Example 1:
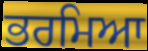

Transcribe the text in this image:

ਭਰਮਿਆ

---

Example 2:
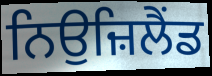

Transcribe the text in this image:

ਨਿਉਜ਼ਿਲੈਂਡ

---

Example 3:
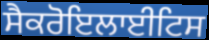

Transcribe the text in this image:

ਸੈਕਰੋਇਲਾਈਟਿਸ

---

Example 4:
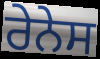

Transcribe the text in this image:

ਰੇਨੇਸ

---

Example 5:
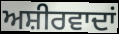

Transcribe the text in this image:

ਅਸ਼ੀਰਵਾਦਾਂ